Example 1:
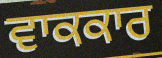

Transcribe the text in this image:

ਵਾਕਕਾਰ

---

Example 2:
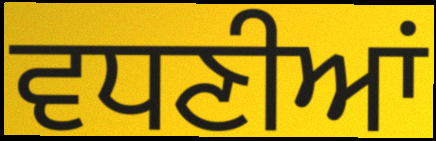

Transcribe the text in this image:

ਵਧਣੀਆਂ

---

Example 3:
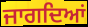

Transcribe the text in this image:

ਜਾਗਦਿਆਂ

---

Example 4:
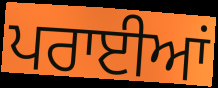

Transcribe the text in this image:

ਪਰਾਈਆਂ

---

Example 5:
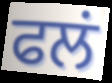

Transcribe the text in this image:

ਫਲਂ